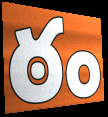
ఠం